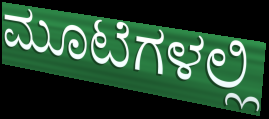
ಮೂಟೆಗಳಲ್ಲಿ